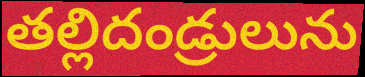
తల్లిదండ్రులును